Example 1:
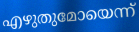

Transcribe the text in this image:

എഴുതുമോയെന്ന്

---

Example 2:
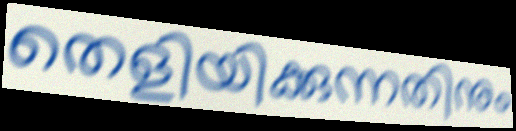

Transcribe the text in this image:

തെളിയിക്കുന്നതിനും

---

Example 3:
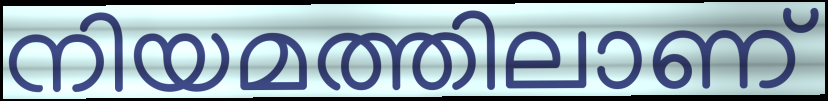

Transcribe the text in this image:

നിയമത്തിലാണ്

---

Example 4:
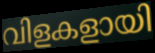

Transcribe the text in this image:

വിളകളായി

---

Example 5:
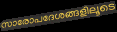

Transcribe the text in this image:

സാരോപദേശങ്ങളിലൂടെ